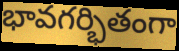
భావగర్భితంగా